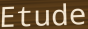
Etude